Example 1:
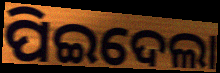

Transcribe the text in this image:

ପିଇଦେଲା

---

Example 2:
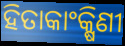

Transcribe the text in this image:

ହିତାକାଂକ୍ଷିଣୀ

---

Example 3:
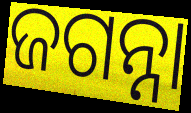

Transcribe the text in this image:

ଜଗନ୍ନା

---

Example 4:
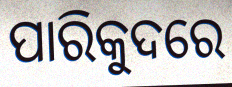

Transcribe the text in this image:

ପାରିକୁଦରେ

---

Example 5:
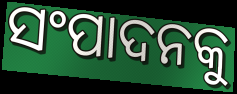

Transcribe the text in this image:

ସଂପାଦନକୁ